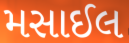
મસાઈલ